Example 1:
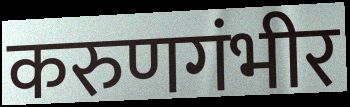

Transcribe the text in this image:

करुणगंभीर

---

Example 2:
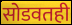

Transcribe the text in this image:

सोडवतही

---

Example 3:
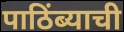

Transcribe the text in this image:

पाठिंब्याची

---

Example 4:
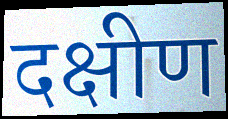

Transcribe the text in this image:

दक्षीण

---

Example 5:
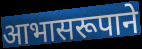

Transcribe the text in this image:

आभासरूपाने